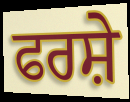
ਫਰਸ਼ੇ